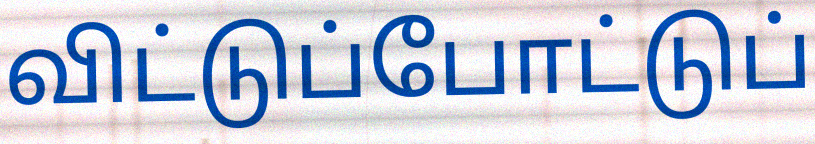
விட்டுப்போட்டுப்